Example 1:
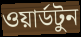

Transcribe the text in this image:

ওয়ার্ডটুন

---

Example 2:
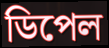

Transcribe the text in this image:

ডিপেল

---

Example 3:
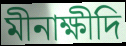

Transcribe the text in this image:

মীনাক্ষীদি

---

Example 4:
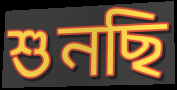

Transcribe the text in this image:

শুনছি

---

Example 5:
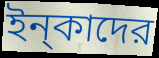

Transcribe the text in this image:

ইন্‌কাদের